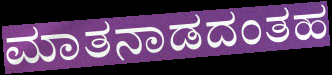
ಮಾತನಾಡದಂತಹ